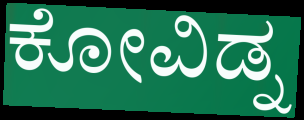
ಕೋವಿಡ್ನ